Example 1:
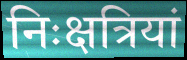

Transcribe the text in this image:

निःक्षत्रियां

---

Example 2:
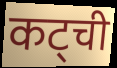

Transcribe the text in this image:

कट्ची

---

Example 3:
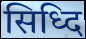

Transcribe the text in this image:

सिध्दि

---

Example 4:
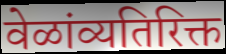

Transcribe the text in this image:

वेळांव्यतिरिक्त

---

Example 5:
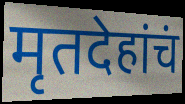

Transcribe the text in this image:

मृतदेहांचं